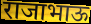
राजाभाऊ